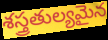
శస్త్రతుల్యమైన